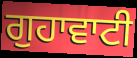
ਗੁਹਾਵਾਟੀ